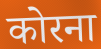
कोरना